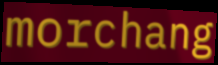
morchang